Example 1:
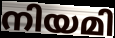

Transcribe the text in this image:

നിയമി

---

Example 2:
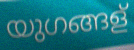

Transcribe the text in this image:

യുഗങ്ങള്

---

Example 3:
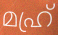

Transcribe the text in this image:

മഹ്ര്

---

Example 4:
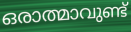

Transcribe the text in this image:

ഒരാത്മാവുണ്ട്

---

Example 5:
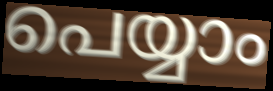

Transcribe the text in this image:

പെയ്യാം